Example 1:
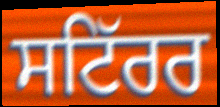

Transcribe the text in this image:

ਸਟਿੱਰਰ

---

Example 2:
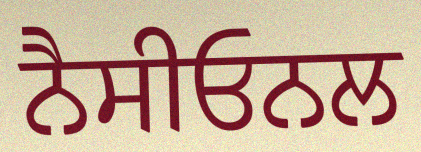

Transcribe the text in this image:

ਨੈਸੀਓਨਲ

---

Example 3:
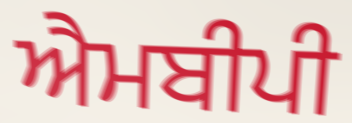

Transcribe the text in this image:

ਐਮਬੀਪੀ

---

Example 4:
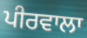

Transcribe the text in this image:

ਪੀਰਵਾਲਾ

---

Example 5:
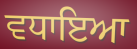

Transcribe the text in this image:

ਵਧਾਇਆ